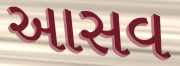
આસવ